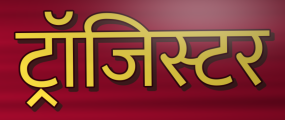
ट्रॉजिस्टर